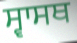
ਸ੍ਵਾਸਥ